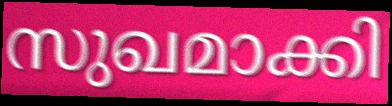
സുഖമാക്കി